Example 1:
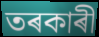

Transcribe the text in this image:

তৰকাৰী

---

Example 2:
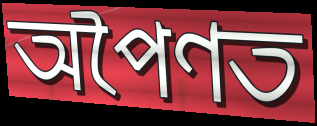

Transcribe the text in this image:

অপৈণত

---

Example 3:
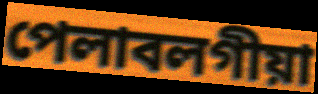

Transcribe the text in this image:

পেলাবলগীয়া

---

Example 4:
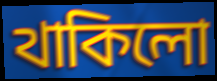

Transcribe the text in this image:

থাকিলো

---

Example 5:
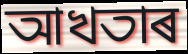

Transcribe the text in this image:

আখতাৰ